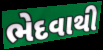
ભેદવાથી